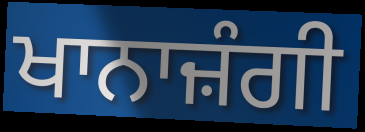
ਖਾਨਾਜ਼ੰਗੀ